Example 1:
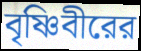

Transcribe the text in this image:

বৃষ্ণিবীরের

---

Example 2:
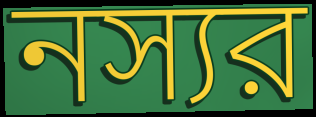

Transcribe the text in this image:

নস্যর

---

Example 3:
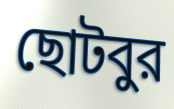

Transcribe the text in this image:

ছোটবুর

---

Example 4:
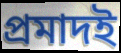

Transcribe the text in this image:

প্রমাদই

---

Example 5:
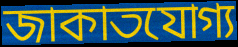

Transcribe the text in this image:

জাকাতযোগ্য